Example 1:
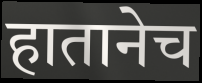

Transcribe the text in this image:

हातानेच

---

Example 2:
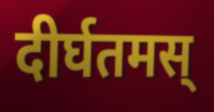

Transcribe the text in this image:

दीर्घतमस्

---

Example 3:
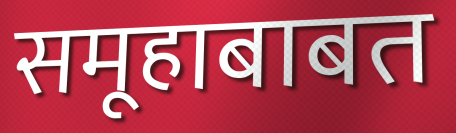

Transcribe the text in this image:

समूहाबाबत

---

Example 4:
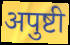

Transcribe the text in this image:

अपुष्टी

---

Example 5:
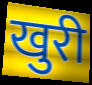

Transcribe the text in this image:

खुरी